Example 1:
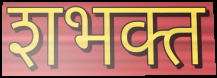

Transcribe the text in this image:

शभक्त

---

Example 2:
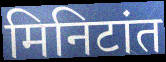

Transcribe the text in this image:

मिनिटांत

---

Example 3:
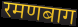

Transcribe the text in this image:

रमणबाग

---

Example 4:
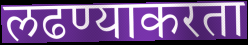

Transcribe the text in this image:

लढण्याकरता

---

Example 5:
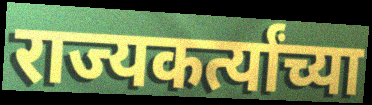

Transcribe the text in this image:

राज्यकर्त्यांच्या